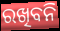
ରଖିବନି